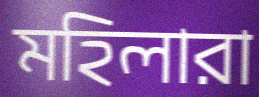
মহিলারা